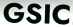
GSIC